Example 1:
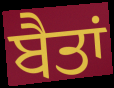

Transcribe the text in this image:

ਬੈਤਾਂ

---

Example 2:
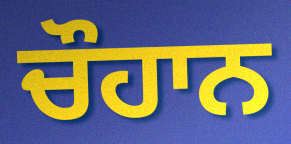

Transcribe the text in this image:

ਚੌਹਾਨ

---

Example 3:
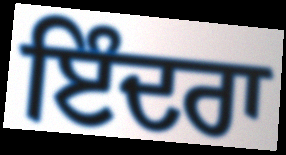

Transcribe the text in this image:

ਇੰਦਰਾ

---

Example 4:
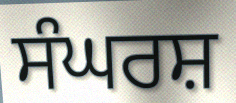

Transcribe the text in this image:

ਸੰਘਰਸ਼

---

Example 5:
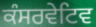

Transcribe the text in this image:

ਕੰਸਰਵੇਟਿਵ